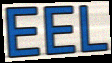
EEL